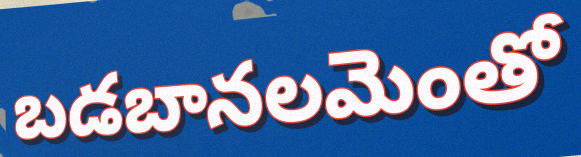
బడబానలమెంతో